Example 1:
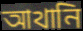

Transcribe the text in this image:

আথানি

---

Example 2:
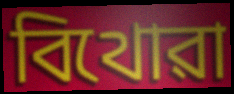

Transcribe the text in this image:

বিথোৱা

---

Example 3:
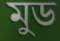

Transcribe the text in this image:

মুড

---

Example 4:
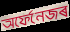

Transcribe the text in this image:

অৰ্ফেনেজৰ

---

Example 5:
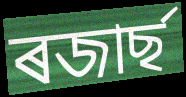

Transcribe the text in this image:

ৰজাৰ্ছ